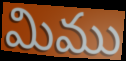
మిము